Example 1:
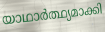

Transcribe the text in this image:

യാഥാർത്ഥ്യമാക്കി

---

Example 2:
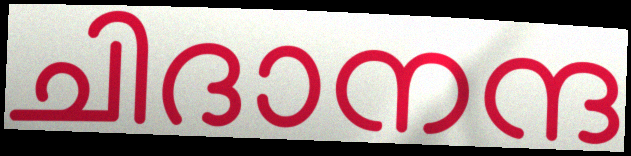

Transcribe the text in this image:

ചിദാനന്ദ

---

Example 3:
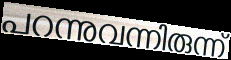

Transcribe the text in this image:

പറന്നുവന്നിരുന്ന്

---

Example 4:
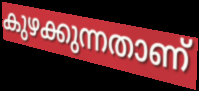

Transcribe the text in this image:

കുഴക്കുന്നതാണ്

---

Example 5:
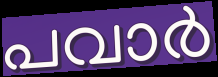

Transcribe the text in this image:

പവാർ